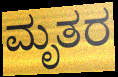
ಮೃತರ